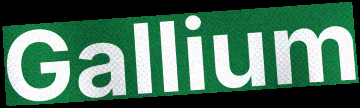
Gallium